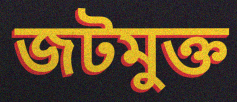
জটমুক্ত